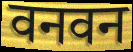
वनवन